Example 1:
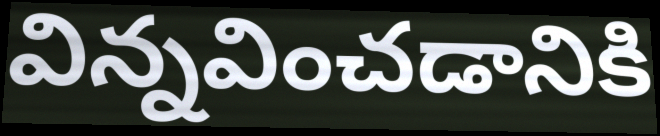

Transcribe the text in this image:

విన్నవించడానికి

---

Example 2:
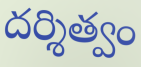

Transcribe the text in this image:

దర్శిత్వం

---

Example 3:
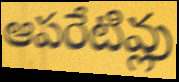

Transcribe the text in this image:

ఆపరేటివ్లు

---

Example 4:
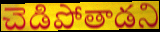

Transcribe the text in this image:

చెడిపోతాడని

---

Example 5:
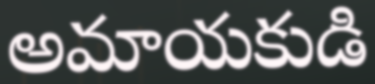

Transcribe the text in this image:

అమాయకుడి